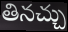
తినచ్చు